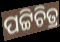
ପଟ୍ଟିଚିତ୍ର